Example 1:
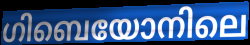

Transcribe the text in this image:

ഗിബെയോനിലെ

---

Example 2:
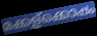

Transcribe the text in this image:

മക്കള്ക്കൊപ്പം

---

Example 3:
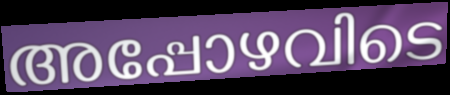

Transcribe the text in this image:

അപ്പോഴവിടെ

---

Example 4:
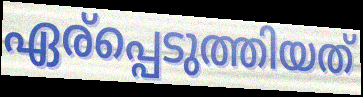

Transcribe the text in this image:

ഏര്പ്പെടുത്തിയത്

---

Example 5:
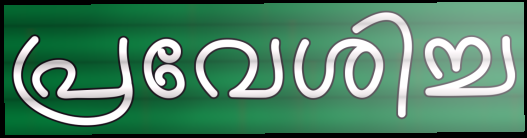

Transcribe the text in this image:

പ്രവേശിച്ച